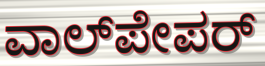
ವಾಲ್‌ಪೇಪರ್